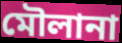
মৌলানা